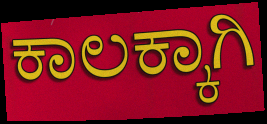
ಕಾಲಕ್ಕಾಗಿ